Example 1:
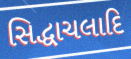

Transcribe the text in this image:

સિદ્ધાચલાદિ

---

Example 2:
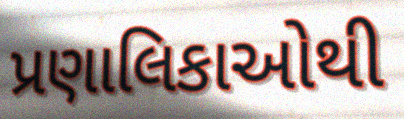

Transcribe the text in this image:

પ્રણાલિકાઓથી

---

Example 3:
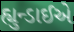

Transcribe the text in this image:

હ્યુન્ડાઈએ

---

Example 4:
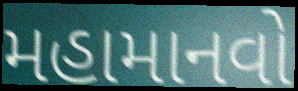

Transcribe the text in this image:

મહામાનવો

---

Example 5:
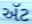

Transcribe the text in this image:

ઍટ